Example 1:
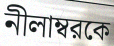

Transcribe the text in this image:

নীলাম্বরকে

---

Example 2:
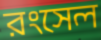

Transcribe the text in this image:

রংসেল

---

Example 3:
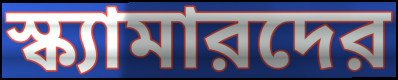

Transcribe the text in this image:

স্ক্যামারদের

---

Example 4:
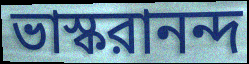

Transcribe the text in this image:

ভাস্করানন্দ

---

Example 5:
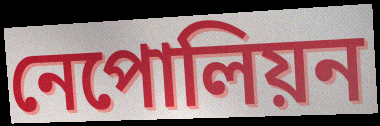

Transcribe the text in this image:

নেপোলিয়ন